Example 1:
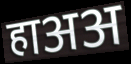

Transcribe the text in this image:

हाअअ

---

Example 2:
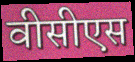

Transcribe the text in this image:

वीसीएस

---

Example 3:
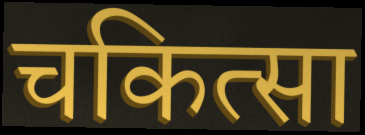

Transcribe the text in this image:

चकित्सा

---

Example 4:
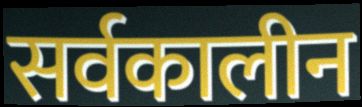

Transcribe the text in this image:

सर्वकालीन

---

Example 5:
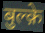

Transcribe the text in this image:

बुल्क़े